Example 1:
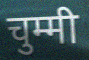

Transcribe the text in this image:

चुम्मी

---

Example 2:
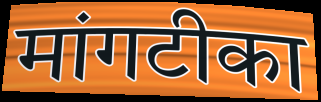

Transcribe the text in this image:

मांगटीका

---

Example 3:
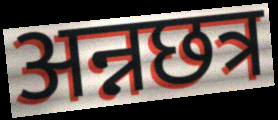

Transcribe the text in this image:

अन्नछत्र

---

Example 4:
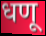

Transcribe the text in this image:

धणू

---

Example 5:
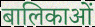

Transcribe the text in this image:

बालिकाओं